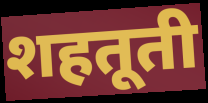
शहतूती